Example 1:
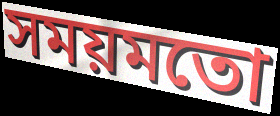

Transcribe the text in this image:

সময়মতো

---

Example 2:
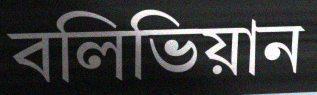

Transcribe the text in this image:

বলিভিয়ান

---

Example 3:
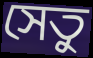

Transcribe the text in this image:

সেতু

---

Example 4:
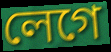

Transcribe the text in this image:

লেগে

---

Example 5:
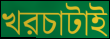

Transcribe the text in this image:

খরচাটাই